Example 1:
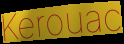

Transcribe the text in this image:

Kerouac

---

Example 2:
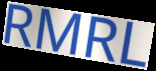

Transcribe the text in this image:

RMRL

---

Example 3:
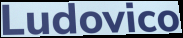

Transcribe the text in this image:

Ludovico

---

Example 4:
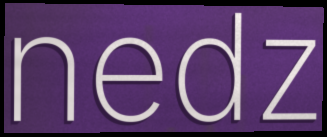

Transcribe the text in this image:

nedz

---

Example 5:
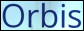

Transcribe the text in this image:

Orbis